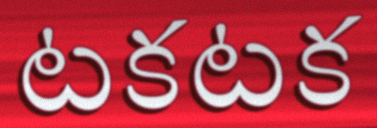
టకటక